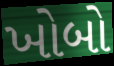
ખોબો